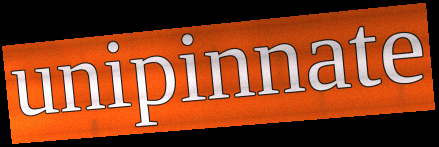
unipinnate